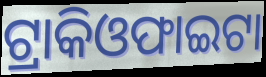
ଟ୍ରାକିଓଫାଇଟା